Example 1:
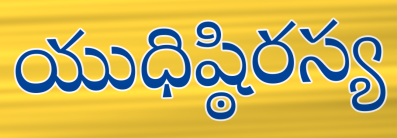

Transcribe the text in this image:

యుధిష్ఠిరస్య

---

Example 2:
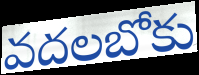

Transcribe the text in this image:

వదలబోకు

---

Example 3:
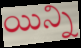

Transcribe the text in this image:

యిన్ని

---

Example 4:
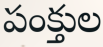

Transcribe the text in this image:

పంక్తుల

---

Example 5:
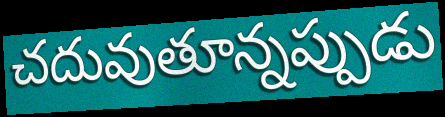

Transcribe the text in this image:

చదువుతూన్నప్పుడు